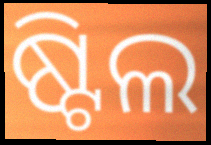
ଷ୍ଟିଲ